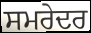
ਸਮਰੇਦਰ